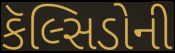
કૅલ્સિડોની